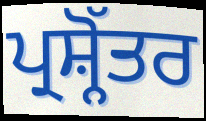
ਪ੍ਰਸ਼੍ਨੋੱਤਰ